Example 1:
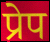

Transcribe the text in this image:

प्रेप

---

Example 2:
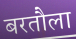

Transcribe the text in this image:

बरतौला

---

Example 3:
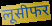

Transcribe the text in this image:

लूसीफर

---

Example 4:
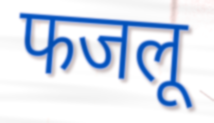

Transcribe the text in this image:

फजलू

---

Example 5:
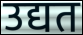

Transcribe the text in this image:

उद्यत